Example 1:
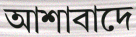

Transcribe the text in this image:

আশাবাদে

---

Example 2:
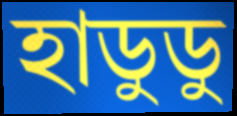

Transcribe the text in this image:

হাডুডু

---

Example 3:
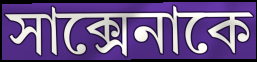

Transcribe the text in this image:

সাক্সেনাকে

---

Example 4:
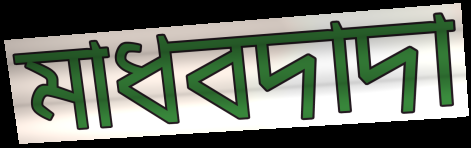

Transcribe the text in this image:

মাধবদাদা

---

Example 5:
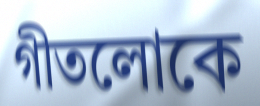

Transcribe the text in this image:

গীতলোকে